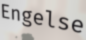
Engelse